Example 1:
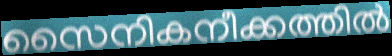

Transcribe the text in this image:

സൈനികനീക്കത്തിൽ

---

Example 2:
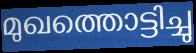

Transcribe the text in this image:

മുഖത്തൊട്ടിച്ചു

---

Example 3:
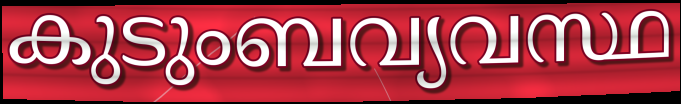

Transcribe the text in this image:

കുടുംബവ്യവസ്ഥ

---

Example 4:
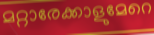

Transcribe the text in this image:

മറ്റാരേക്കാളുമേറെ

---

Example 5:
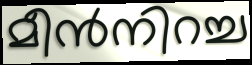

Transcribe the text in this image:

മീൻനിറച്ച